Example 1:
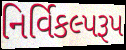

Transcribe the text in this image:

નિર્વિકલ્પરૂપ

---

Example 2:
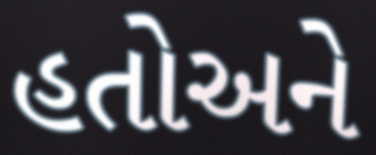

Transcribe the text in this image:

હતોઅને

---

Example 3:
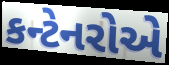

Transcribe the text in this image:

કન્ટેનરોએ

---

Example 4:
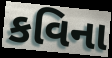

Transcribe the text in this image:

કવિના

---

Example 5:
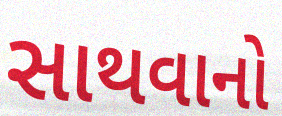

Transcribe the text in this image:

સાથવાનો